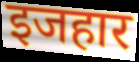
इजहार